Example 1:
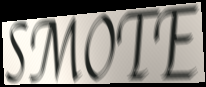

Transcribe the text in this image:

SMOTE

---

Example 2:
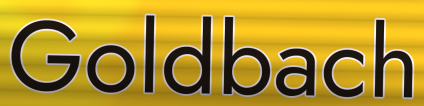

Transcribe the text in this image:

Goldbach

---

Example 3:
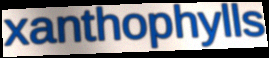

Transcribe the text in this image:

xanthophylls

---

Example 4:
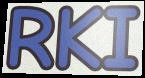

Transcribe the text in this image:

RKI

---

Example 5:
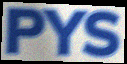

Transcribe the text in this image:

PYS